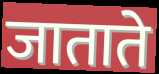
जाताते